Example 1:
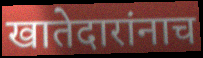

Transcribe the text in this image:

खातेदारांनाच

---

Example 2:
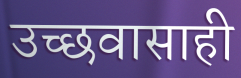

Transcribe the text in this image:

उच्छवासाही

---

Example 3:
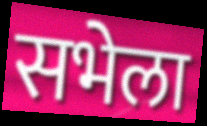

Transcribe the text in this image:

सभेला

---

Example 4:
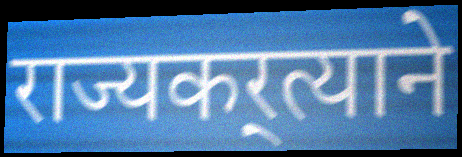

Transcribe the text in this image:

राज्यकर्त्याने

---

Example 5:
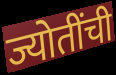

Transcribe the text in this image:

ज्योतींची